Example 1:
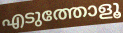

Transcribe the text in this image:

എടുത്തോളൂ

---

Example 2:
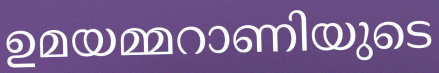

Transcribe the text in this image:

ഉമയമ്മറാണിയുടെ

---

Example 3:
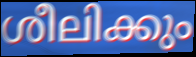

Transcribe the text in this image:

ശീലിക്കും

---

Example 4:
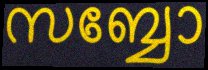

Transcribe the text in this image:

സബ്ബോ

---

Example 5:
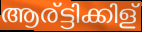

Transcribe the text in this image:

ആര്ട്ടിക്കിള്